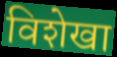
विशेखा